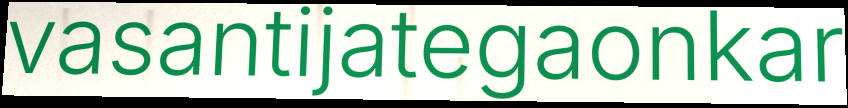
vasantijategaonkar